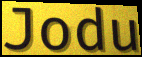
Jodu